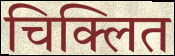
चिक्लित